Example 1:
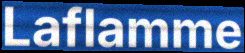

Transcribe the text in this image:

Laflamme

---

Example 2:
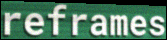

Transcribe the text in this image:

reframes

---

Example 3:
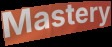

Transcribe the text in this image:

Mastery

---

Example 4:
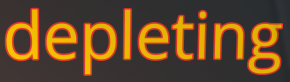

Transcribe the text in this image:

depleting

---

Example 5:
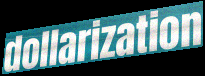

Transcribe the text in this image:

dollarization